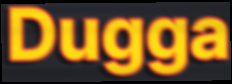
Dugga